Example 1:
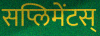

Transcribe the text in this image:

सप्लिमेंटस्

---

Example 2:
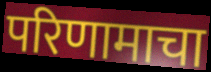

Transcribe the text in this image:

परिणामाचा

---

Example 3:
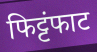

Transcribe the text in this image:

फिट्टंफाट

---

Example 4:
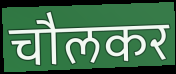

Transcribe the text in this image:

चौलकर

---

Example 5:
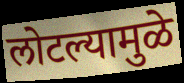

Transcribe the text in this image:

लोटल्यामुळे